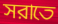
সরাতে